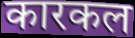
कारकल